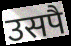
उसपै